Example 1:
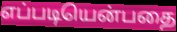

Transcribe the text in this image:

எப்படியென்பதை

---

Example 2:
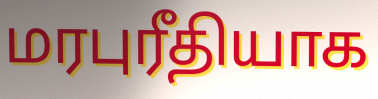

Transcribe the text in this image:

மரபுரீதியாக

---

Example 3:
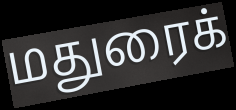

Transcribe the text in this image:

மதுரைக்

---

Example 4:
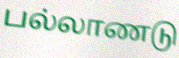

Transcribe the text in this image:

பல்லாணடு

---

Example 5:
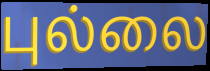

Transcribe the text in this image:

புல்லை